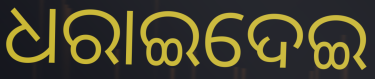
ଧରାଇଦେଇ